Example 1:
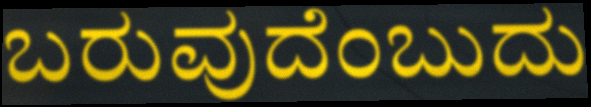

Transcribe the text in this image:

ಬರುವುದೆಂಬುದು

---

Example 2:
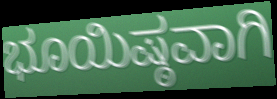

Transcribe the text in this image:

ಭೂಯಿಷ್ಠವಾಗಿ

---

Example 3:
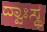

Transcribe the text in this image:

ದ್ವಾಃಸ್ಥ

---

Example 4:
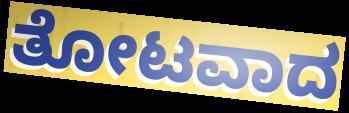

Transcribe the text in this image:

ತೋಟವಾದ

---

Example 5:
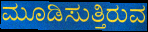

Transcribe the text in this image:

ಮೂಡಿಸುತ್ತಿರುವ